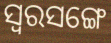
ସ୍ୱରସଙ୍ଗେ